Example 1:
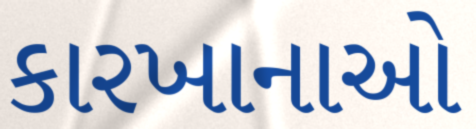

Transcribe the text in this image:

કારખાનાઓ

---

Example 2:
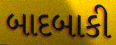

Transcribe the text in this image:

બાદબાકી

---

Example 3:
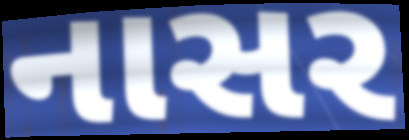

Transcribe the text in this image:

નાસર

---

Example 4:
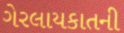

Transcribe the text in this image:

ગેરલાયકાતની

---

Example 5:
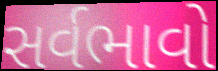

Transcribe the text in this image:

સર્વભાવો